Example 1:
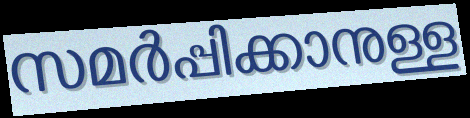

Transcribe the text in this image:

സമർപ്പിക്കാനുള്ള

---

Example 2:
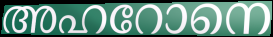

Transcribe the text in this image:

അഹറോനെ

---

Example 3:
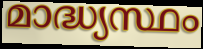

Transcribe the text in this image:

മാദ്ധ്യസ്ഥം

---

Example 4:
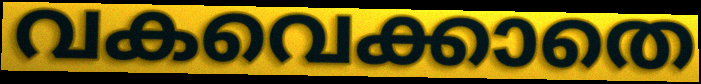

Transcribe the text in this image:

വകവെക്കാതെ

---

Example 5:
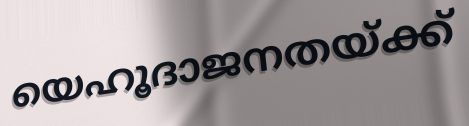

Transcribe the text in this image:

യെഹൂദാജനതയ്ക്ക്